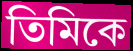
তিমিকে